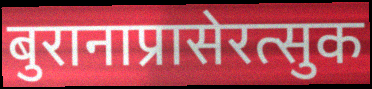
बुरानाप्रासेरत्सुक